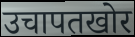
उचापतखोर